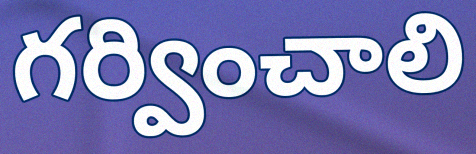
గర్వించాలి